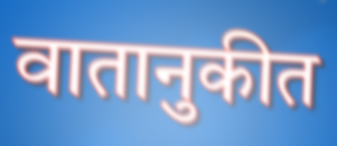
वातानुकीत